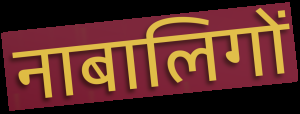
नाबालिगों